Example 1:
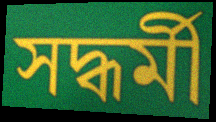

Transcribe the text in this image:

সদ্ধর্মী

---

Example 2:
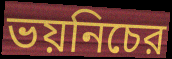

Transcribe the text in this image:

ভয়নিচের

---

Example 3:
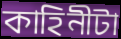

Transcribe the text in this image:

কাহিনীটা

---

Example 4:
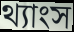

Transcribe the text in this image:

থ্যাংস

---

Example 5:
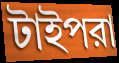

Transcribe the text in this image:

টাইপরা